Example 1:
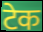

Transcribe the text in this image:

टेक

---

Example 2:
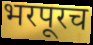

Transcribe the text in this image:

भरपूरच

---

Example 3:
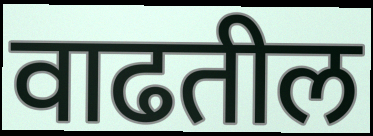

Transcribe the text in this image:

वाढतील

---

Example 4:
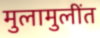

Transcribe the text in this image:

मुलामुलींत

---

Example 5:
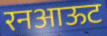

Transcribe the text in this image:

रनआऊट